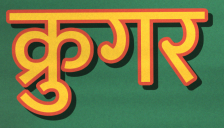
क्रुगर